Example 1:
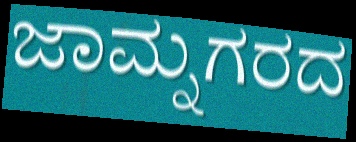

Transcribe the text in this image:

ಜಾಮ್ನಗರದ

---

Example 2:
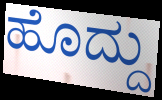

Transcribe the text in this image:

ಹೊದ್ದು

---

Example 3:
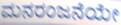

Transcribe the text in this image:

ಮನರಂಜನೆಯೇ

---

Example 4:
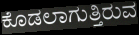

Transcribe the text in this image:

ಕೊಡಲಾಗುತ್ತಿರುವ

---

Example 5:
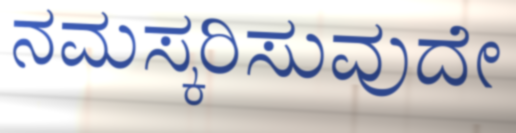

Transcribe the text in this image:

ನಮಸ್ಕರಿಸುವುದೇ